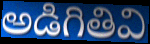
అడిగితివి